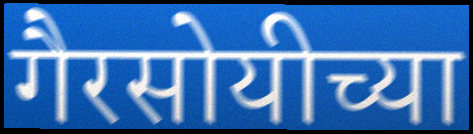
गैरसोयीच्या